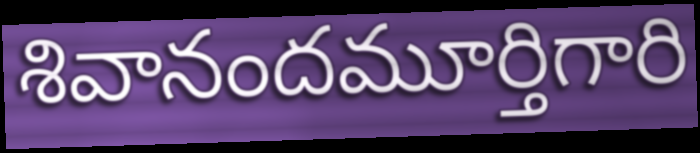
శివానందమూర్తిగారి